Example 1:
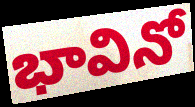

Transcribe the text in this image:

భావినో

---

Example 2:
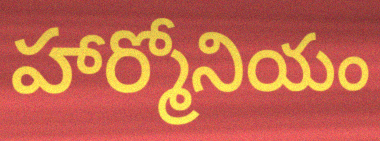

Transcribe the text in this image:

హార్మోనియం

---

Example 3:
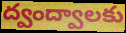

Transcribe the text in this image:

ద్వంద్వాలకు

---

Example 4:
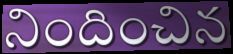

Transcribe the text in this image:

నిందించిన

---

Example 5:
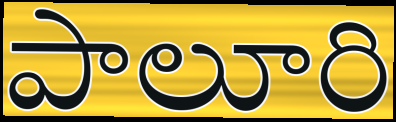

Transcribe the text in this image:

పాలూరి